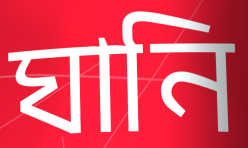
ঘানি